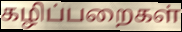
கழிப்பறைகள்